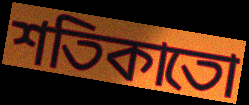
শতিকাতো